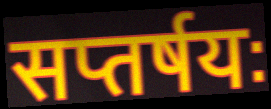
सप्तर्षयः